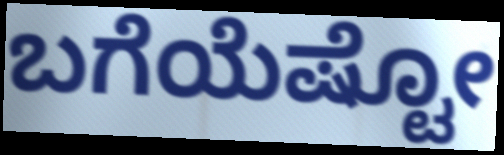
ಬಗೆಯೆಷ್ಟೋ